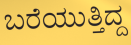
ಬರೆಯುತ್ತಿದ್ದ